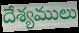
దేశ్యములు